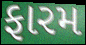
ફારમ